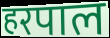
हरपाल